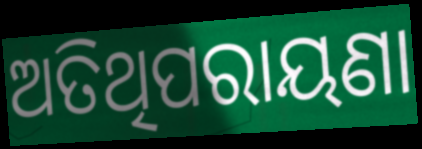
ଅତିଥିପରାୟଣା